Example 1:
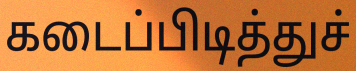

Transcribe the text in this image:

கடைப்பிடித்துச்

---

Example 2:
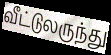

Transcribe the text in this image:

வீட்டுலருந்து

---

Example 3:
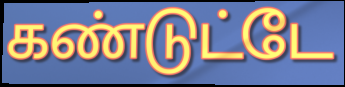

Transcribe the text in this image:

கண்டுட்டே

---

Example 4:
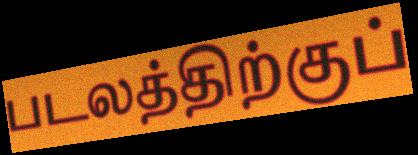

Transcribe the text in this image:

படலத்திற்குப்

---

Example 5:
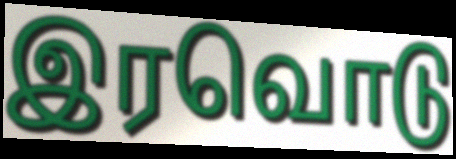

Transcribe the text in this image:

இரவொடு